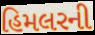
હિમલરની